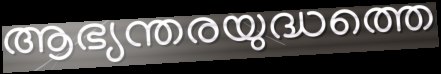
ആഭ്യന്തരയുദ്ധത്തെ